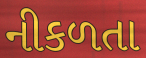
નીકળતા